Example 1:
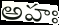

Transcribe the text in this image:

అహః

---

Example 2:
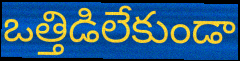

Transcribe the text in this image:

ఒత్తిడిలేకుండా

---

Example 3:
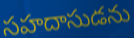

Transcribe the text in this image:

సహదాసుడను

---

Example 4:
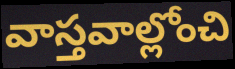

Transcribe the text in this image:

వాస్తవాల్లోంచి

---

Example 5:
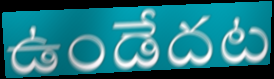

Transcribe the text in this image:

ఉండేదట